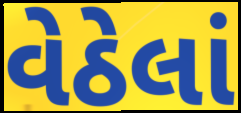
વેઠેલાં